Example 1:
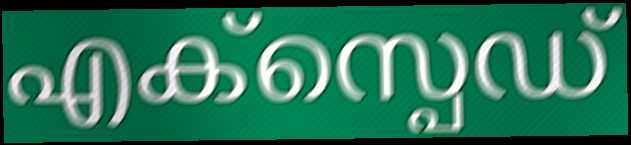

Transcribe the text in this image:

എക്സ്പെഡ്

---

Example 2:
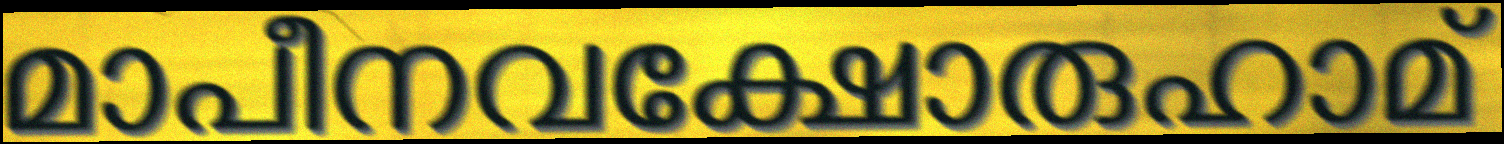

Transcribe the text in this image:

മാപീനവക്ഷോരുഹാമ്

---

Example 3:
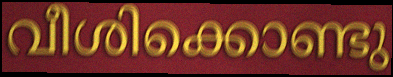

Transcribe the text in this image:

വീശിക്കൊണ്ടു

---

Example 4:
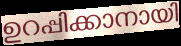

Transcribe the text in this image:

ഉറപ്പിക്കാനായി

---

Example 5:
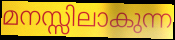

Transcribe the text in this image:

മനസ്സിലാകുന്ന